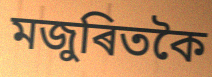
মজুৰিতকৈ